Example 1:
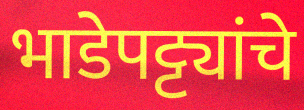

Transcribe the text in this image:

भाडेपट्ट्यांचे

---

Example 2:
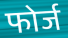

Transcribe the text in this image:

फोर्ज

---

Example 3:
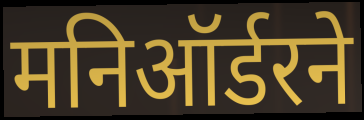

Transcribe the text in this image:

मनिऑर्डरने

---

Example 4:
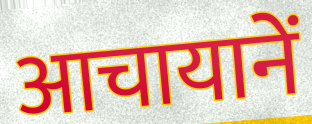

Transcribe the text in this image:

आचायानें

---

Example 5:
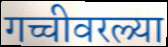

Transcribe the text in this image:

गच्चीवरल्या